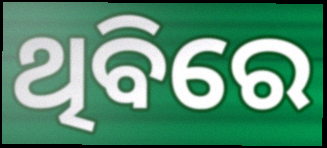
ଥିବିରେ